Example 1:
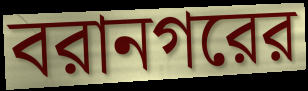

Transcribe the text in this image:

বরানগরের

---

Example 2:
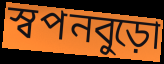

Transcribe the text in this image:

স্বপনবুড়ো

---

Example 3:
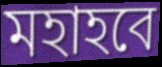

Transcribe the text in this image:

মহাহবে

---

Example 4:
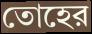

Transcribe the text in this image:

তোহের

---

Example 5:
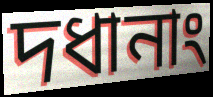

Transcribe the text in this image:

দধানাং